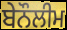
ਬੇਨੌਲੀਮ